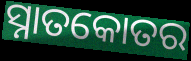
ସ୍ନାତକୋତର